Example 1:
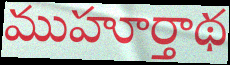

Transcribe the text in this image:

ముహూర్తాథ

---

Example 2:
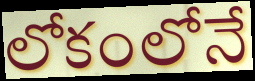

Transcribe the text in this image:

లోకంలోనే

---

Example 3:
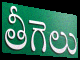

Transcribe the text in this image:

తీగెలు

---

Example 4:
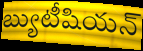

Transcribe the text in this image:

బ్యుటీషియన్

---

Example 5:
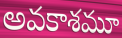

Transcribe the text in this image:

అవకాశమూ